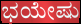
ಭಯೇಷು